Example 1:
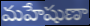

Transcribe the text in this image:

మహేషుణా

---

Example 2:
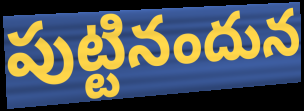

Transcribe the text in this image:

పుట్టినందున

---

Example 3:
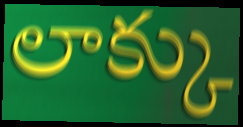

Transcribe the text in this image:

లాక్కు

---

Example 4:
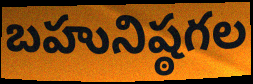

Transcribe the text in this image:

బహునిష్ఠగల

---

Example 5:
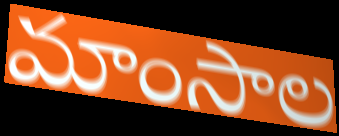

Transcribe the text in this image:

మాంసాల